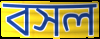
বসল